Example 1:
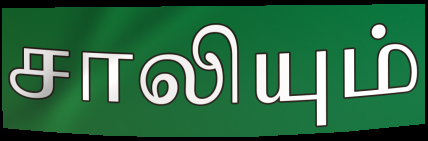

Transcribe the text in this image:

சாலியும்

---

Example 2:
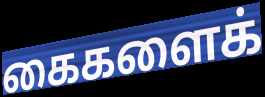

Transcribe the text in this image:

கைகளைக்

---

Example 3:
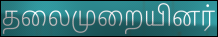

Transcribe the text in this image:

தலைமுறையினர்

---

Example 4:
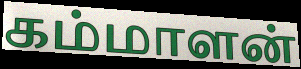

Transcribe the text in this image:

கம்மாளன்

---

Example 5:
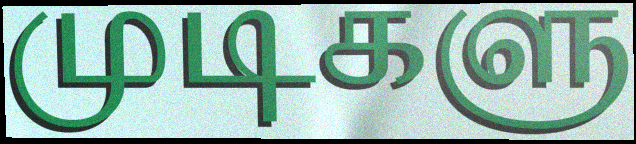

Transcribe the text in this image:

முடிகளு